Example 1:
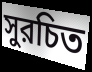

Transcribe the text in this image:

সুরচিত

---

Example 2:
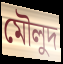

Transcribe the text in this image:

মৌলুদ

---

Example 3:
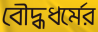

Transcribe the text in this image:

বৌদ্ধধর্মের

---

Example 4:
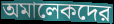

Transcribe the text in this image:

অমালেকদের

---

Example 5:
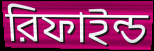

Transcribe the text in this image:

রিফাইন্ড